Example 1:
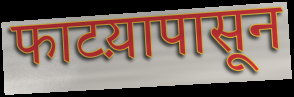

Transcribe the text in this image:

फाटय़ापासून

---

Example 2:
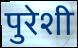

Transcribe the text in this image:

पुरेशी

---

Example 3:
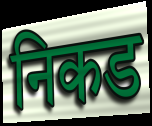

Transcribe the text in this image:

निकड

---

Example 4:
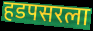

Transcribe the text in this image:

हडपसरला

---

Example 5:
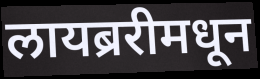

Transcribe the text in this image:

लायब्ररीमधून